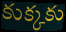
కుక్కకు